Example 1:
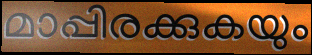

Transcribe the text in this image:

മാപ്പിരക്കുകയും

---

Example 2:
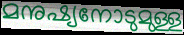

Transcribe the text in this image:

മനുഷ്യനോടുമുള്ള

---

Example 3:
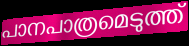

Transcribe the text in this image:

പാനപാത്രമെടുത്ത്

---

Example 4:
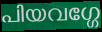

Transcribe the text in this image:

പിയവഗ്ഗേ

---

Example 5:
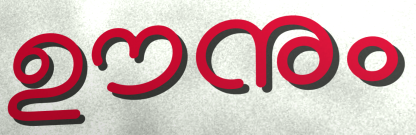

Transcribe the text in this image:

ഊനും